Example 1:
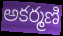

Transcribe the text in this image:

అకర్మణి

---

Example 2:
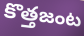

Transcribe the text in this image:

కొత్తజంట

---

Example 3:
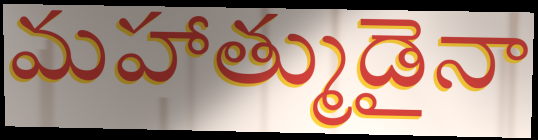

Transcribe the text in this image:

మహాత్ముడైనా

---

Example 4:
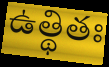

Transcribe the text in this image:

ఉత్థితః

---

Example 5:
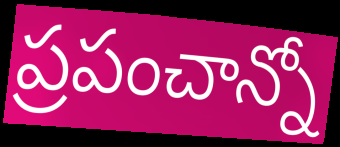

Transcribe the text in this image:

ప్రపంచాన్నో